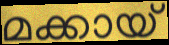
മക്കായ്